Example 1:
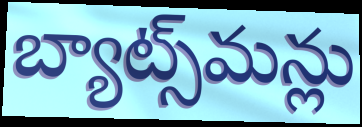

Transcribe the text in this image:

బ్యాట్స్‌మన్లు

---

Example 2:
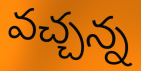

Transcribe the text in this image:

వచ్చన్న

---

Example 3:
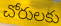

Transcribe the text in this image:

చోరులకు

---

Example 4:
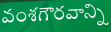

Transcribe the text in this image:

వంశగౌరవాన్ని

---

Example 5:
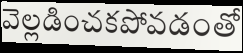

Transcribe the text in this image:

వెల్లడించకపోవడంతో